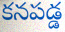
కనపడ్డ